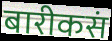
बारीकसं